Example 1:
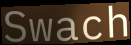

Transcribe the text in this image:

Swach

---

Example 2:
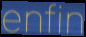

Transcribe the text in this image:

enfin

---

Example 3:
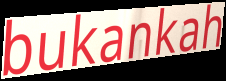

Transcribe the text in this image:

bukankah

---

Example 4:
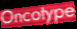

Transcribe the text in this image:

Oncotype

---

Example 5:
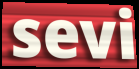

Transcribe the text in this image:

sevi